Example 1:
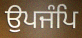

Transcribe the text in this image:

ਉਪਜੰਪਿ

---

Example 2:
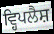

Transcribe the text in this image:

ਵ੍ਹਿਪਲੈਸ਼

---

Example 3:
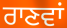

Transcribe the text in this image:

ਰਾਣਵਾਂ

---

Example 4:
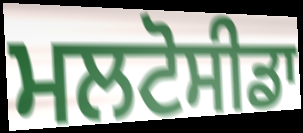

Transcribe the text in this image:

ਮਲਟੋਸੀਡਾ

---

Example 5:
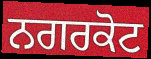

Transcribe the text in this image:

ਨਗਰਕੋਟ